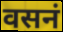
वसनं